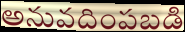
అనువదింపబడి